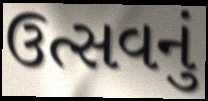
ઉત્સવનું